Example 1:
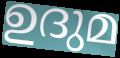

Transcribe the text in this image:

ഉദുമ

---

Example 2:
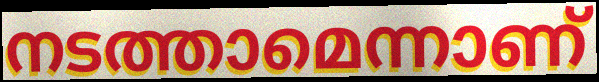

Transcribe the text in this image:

നടത്താമെന്നാണ്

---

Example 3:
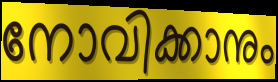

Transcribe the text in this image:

നോവിക്കാനും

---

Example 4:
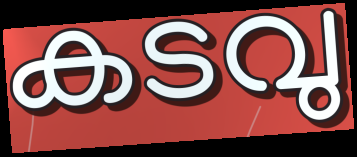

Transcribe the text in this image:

കടവു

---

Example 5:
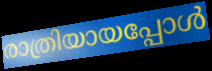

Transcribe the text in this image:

രാത്രിയായപ്പോൾ